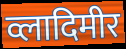
व्‍लादिमीर